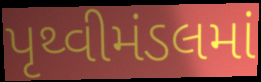
પૃથ્વીમંડલમાં